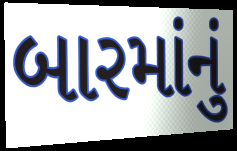
બારમાંનું